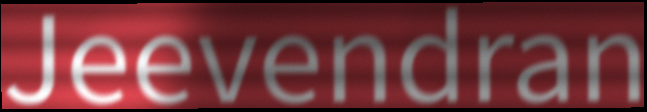
Jeevendran